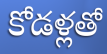
కోడళ్లతో